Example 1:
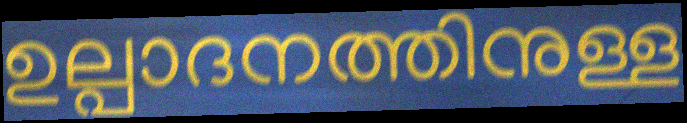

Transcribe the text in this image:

ഉല്പാദനത്തിനുള്ള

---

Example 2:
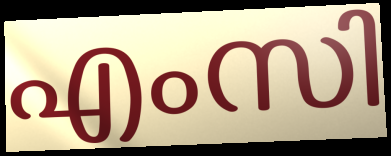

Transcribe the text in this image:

എംസി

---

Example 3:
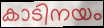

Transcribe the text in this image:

കാടിനയം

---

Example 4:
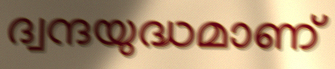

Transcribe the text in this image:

ദ്വന്ദയുദ്ധമാണ്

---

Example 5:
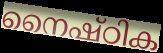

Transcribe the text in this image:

നൈഷ്ഠിക